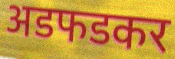
अडफडकर